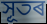
সূতৰ